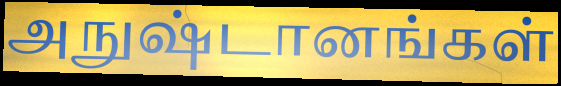
அநுஷ்டானங்கள்